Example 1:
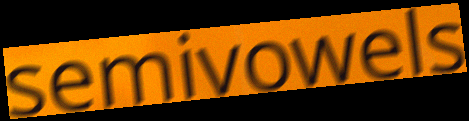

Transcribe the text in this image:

semivowels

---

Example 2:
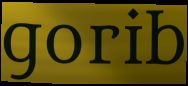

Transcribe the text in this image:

gorib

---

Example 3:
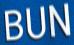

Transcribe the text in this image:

BUN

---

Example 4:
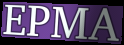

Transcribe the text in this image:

EPMA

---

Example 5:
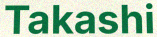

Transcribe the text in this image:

Takashi